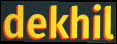
dekhil